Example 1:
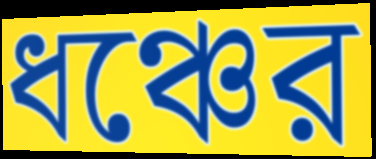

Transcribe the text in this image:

ধঞ্চের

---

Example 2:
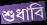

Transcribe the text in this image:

শুধাবি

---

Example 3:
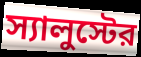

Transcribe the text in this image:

স্যালুস্টের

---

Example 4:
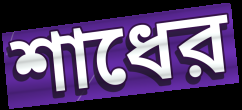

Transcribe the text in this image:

শাধের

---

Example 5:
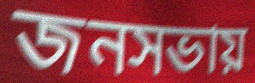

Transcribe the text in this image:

জনসভায়